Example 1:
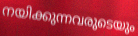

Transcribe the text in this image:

നയിക്കുന്നവരുടെയും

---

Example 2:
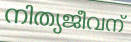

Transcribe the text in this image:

നിത്യജീവന്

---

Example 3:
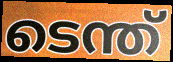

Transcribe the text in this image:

ടെന്ത്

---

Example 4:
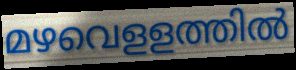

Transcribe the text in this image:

മഴവെളളത്തിൽ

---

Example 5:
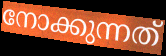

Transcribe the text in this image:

നോക്കുന്നത്